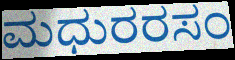
ಮಧುರರಸಂ